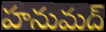
హనుమద్